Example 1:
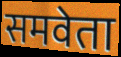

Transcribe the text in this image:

समवेता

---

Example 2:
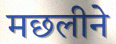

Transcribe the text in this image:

मछलीने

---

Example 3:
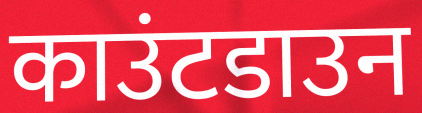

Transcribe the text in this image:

काउंटडाउन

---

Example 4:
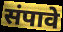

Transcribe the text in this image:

संपावे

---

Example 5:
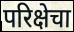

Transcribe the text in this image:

परिक्षेचा